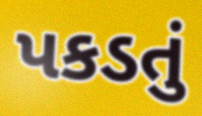
પકડતું